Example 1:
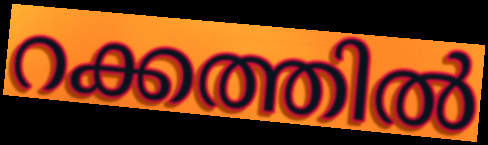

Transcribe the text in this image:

റക്കത്തിൽ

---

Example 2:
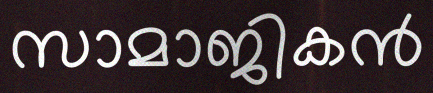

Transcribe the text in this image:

സാമാജികൻ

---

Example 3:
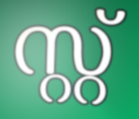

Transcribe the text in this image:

സ്റ്റ്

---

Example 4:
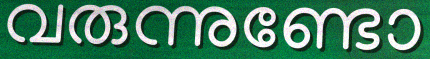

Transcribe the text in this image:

വരുന്നുണ്ടോ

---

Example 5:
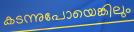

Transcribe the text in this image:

കടന്നുപോയെങ്കിലും